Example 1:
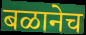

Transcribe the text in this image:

बळानेच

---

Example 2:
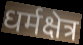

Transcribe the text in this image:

धर्मक्षेत्र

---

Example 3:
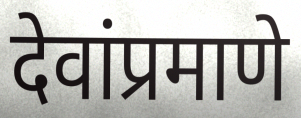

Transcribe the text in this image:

देवांप्रमाणे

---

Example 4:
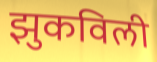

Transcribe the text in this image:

झुकविली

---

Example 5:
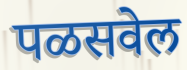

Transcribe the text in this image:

पळसवेल